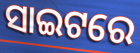
ସାଇଟରେ